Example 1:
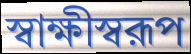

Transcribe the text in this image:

স্বাক্ষীস্বরূপ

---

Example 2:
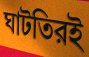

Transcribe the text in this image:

ঘাটতিরই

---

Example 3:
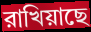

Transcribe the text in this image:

রাখিয়াছে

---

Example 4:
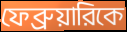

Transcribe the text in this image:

ফেব্রুয়ারিকে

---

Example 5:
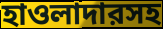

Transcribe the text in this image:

হাওলাদারসহ